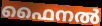
ഫൈനൽ